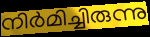
നിർമിച്ചിരുന്നു